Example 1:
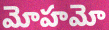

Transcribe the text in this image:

మోహమో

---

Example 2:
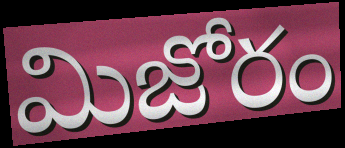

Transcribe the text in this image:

మిజోరం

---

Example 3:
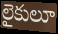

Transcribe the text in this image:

లైకులూ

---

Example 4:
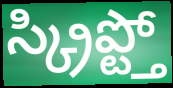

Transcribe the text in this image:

స్క్రిప్ట్తో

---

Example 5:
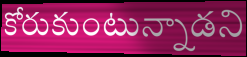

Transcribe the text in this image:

కోరుకుంటున్నాడని